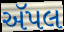
ઍપલ